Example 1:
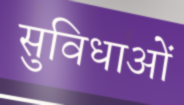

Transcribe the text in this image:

सुविधाओें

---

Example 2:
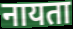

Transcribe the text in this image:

नायता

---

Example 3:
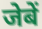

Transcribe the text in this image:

जेबें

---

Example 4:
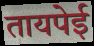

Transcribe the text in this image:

तायपेई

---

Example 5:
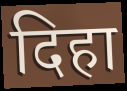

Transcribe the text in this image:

दिहा